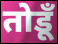
तोडूँ